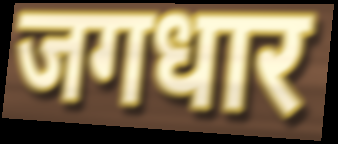
जगधार